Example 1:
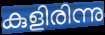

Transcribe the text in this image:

കുളിരിന്നു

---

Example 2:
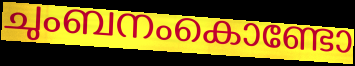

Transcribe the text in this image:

ചുംബനംകൊണ്ടോ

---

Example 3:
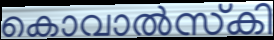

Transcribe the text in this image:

കൊവാൽസ്‌കി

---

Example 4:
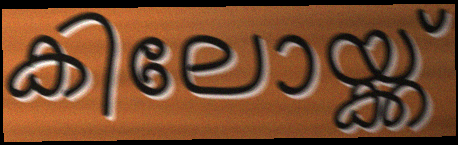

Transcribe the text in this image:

കിലോയ്ക്ക്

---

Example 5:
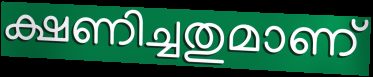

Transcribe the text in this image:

ക്ഷണിച്ചതുമാണ്